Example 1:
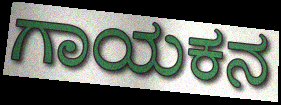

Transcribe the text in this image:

ಗಾಯಕನ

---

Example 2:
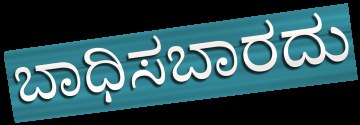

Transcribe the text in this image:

ಬಾಧಿಸಬಾರದು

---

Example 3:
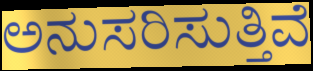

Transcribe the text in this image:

ಅನುಸರಿಸುತ್ತಿವೆ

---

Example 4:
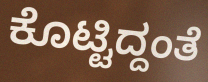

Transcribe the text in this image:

ಕೊಟ್ಟಿದ್ದಂತೆ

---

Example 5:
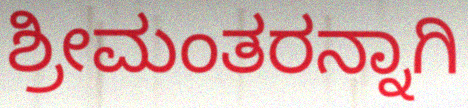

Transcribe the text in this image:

ಶ್ರೀಮಂತರನ್ನಾಗಿ